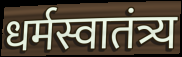
धर्मस्वातंत्र्य